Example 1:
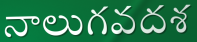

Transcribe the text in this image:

నాలుగవదశ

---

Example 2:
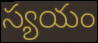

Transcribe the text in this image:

స్యయం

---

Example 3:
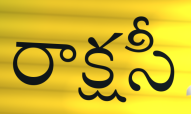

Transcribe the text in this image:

రాక్షసీ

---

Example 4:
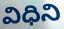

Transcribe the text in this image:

విధిని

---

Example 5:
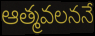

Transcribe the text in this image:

ఆత్మవలననే